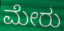
ಮೇರು